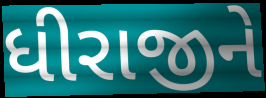
ધીરાજીને